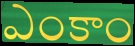
ఎంకాం